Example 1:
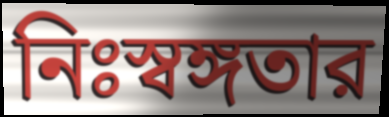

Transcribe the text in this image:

নিঃস্বঙ্গতার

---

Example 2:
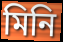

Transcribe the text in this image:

মিনি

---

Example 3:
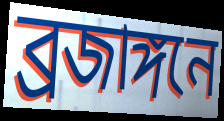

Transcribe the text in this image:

ব্রজাঙ্গনে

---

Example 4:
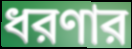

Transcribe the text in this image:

ধরণার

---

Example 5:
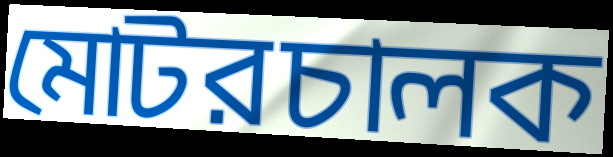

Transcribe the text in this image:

মোটরচালক